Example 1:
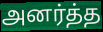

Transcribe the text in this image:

அனர்த்த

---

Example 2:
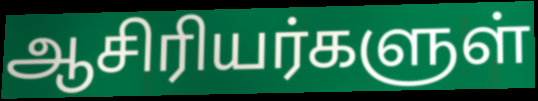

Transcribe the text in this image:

ஆசிரியர்களுள்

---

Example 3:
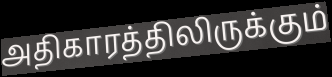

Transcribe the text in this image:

அதிகாரத்திலிருக்கும்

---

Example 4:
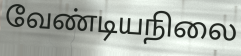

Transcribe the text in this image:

வேண்டியநிலை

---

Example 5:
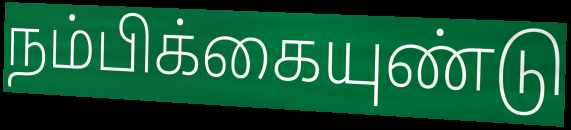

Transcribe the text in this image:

நம்பிக்கையுண்டு